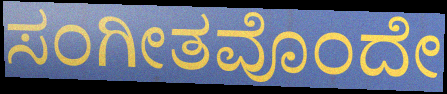
ಸಂಗೀತವೊಂದೇ